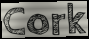
Cork